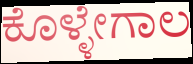
ಕೊಳ್ಳೇಗಾಲ